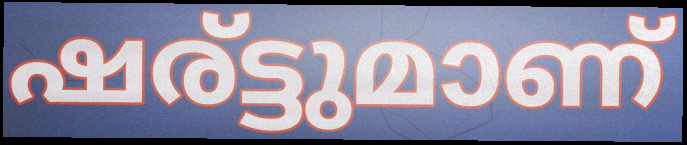
ഷര്ട്ടുമാണ്